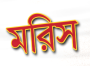
মরিস